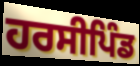
ਹਰਸੀਪਿੰਡ